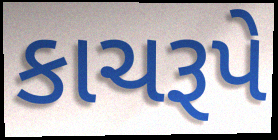
કાચરૂપે